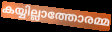
കയ്യില്ലാത്തോരമ്മ